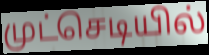
முட்செடியில்